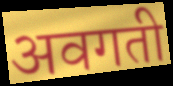
अवगती